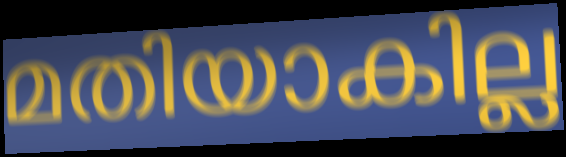
മതിയാകില്ല